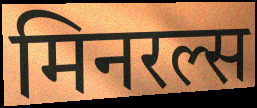
मिनरल्स